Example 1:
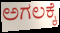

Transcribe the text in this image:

ಅಗಲಕ್ಕೆ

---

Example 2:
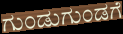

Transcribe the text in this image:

ಗುಂಡುಗುಂಡಗೆ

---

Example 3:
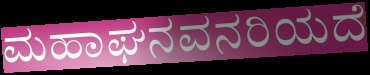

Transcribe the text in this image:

ಮಹಾಘನವನರಿಯದೆ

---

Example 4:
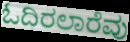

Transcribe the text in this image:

ಓದಿರಲಾರೆವು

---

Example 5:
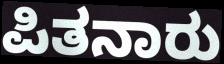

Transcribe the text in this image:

ಪಿತನಾರು